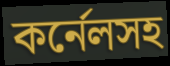
কর্নেলসহ